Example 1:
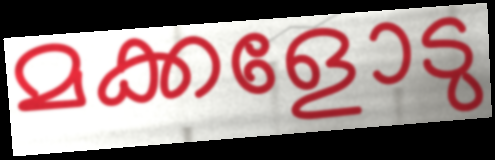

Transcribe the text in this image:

മക്കളോടു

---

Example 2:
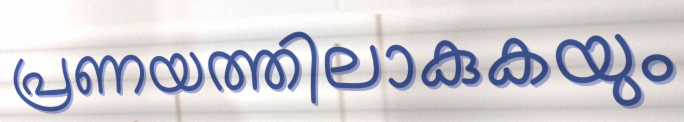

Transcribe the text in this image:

പ്രണയത്തിലാകുകയും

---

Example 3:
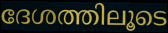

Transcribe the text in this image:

ദേശത്തിലൂടെ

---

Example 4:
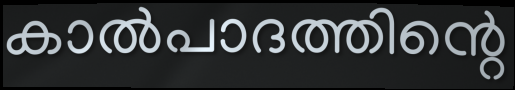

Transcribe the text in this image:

കാൽപാദത്തിന്റെ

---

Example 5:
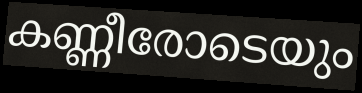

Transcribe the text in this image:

കണ്ണീരോടെയും